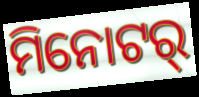
ମିନୋଟର୍